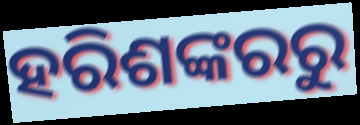
ହରିଶଙ୍କରରୁ